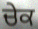
ਚੇਕ